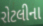
રોટલીના